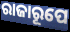
ରାଜାରୂପେ